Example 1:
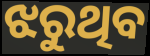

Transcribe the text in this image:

ଝରୁଥିବ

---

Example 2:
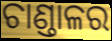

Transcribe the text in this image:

ଚାଣ୍ଡାଳର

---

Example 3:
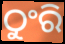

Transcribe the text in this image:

ଠୁଂରି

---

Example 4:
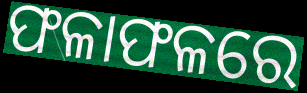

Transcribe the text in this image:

ଫଳାଫଳରେ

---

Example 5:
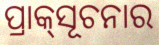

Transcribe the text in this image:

ପ୍ରାକ୍‌ସୂଚନାର